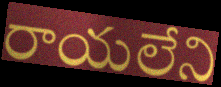
రాయలేని